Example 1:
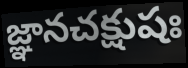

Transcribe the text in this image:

జ్ఞానచక్షుషః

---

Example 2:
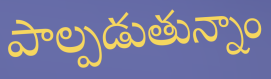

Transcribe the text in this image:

పాల్పడుతున్నాం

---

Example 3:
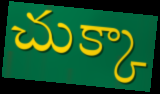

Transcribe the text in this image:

చుక్కా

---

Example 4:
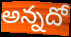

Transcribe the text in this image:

అన్నదో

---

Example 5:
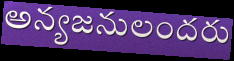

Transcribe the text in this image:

అన్యజనులందరు